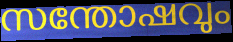
സന്തോഷവും